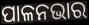
ପାଳନଭାର